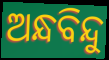
ଅନ୍ଧବିନ୍ଦୁ